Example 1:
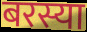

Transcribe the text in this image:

बरस्या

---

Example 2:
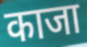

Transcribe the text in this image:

काजा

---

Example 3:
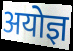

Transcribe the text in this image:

अयोज्ञ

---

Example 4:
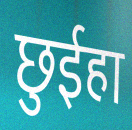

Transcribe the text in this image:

छुईहा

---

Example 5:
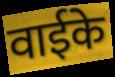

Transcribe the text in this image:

वाईके